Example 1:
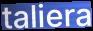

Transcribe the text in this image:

taliera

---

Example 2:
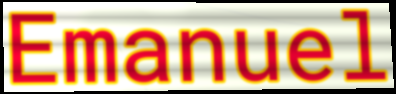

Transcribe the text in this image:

Emanuel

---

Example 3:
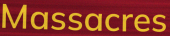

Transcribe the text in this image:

Massacres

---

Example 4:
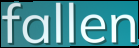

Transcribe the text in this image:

fallen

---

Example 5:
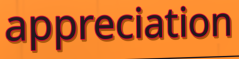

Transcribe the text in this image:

appreciation